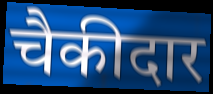
चैकीदार